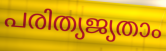
പരിത്യജ്യതാം